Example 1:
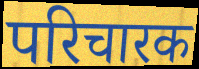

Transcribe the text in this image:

परिचारक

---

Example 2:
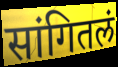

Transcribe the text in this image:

सांगितलं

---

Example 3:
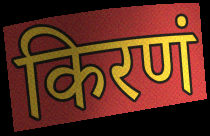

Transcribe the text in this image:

किरणं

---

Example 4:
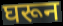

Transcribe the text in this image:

घरून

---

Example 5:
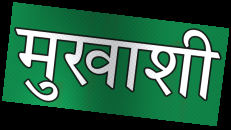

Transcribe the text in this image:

मुखाशी